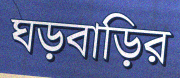
ঘড়বাড়ির